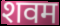
शवम